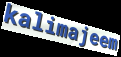
kalimajeem